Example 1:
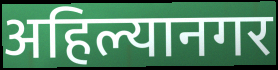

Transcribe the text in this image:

अहिल्यानगर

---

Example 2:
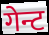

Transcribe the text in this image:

गेन्ट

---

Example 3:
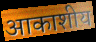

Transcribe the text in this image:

आकाशीय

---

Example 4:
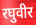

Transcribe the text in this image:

रघुवीर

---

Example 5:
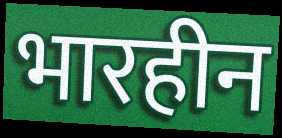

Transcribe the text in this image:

भारहीन